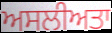
ਅਸਲੀਅਤਾ